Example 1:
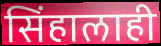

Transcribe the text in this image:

सिंहालाही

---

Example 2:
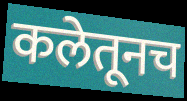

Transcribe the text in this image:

कलेतूनच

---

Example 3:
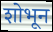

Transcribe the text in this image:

शोभून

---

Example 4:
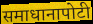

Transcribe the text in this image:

समाधानापोटी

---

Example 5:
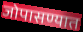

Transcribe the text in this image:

जोपासण्यात